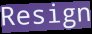
Resign